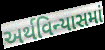
અર્થવિન્યાસમાં